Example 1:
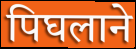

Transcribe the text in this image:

पिघलाने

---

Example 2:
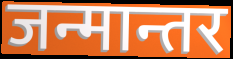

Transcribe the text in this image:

जन्मान्तर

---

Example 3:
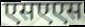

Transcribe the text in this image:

एसएएस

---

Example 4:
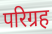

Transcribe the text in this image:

परिग्रह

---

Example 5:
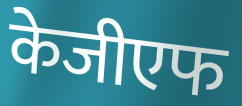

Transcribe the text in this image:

केजीएफ